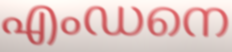
എംഡനെ